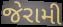
જેરામી